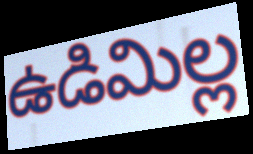
ఉడిమిల్ల